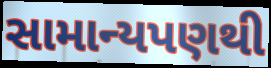
સામાન્યપણથી